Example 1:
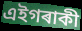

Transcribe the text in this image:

এইগৰাকী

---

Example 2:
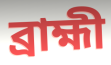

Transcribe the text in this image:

ব্ৰাহ্মী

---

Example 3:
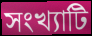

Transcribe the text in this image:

সংখ্যাটি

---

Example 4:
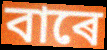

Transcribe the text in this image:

বাৰে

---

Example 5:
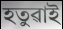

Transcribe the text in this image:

হতুৱাই